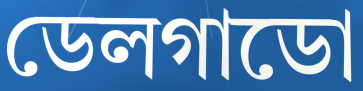
ডেলগাডো